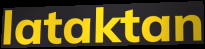
lataktan